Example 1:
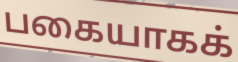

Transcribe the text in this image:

பகையாகக்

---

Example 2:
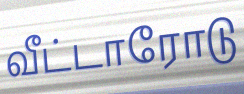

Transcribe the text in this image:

வீட்டாரோடு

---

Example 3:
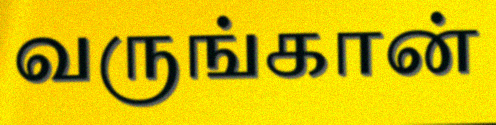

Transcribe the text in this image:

வருங்கான்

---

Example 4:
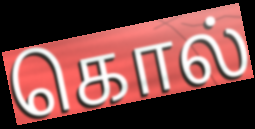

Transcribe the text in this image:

கொல்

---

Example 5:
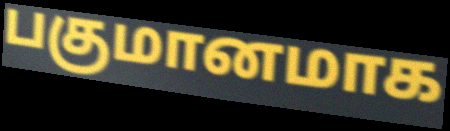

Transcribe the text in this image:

பகுமானமாக